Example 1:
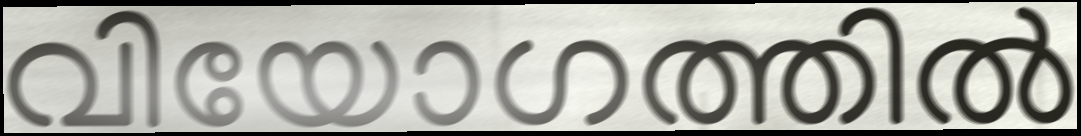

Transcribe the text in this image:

വിയോഗത്തിൽ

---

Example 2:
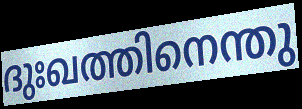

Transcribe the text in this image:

ദുഃഖത്തിനെന്തു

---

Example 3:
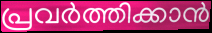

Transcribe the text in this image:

പ്രവർത്തിക്കാൻ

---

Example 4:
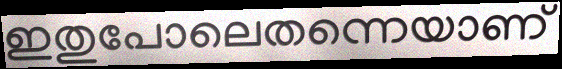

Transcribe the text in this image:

ഇതുപോലെതന്നെയാണ്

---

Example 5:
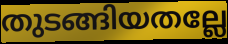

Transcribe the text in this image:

തുടങ്ങിയതല്ലേ